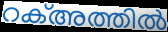
റക്അത്തിൽ